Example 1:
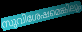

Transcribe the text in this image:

സുവിശേഷമെങ്കിലും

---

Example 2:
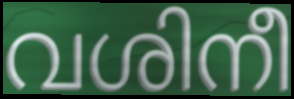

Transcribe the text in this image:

വശിനീ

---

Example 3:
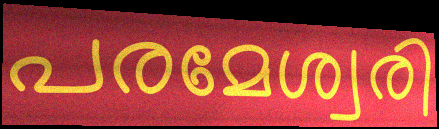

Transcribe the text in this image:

പരമേശ്വരി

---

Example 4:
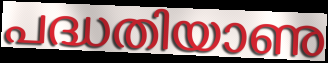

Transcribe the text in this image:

പദ്ധതിയാണു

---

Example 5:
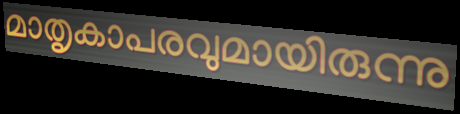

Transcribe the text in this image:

മാതൃകാപരവുമായിരുന്നു